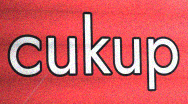
cukup